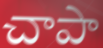
చాపా